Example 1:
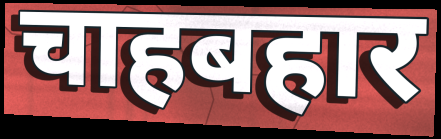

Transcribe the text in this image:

चाहबहार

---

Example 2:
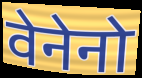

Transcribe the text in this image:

वेनेनो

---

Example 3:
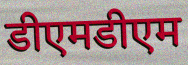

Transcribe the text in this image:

डीएमडीएम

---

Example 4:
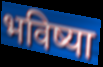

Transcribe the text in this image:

भविष्या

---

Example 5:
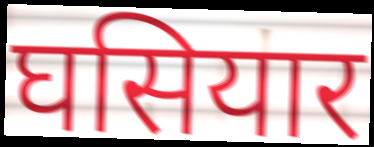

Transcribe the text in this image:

घसियार